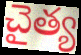
చైత్య